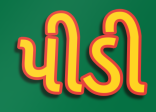
પીડી